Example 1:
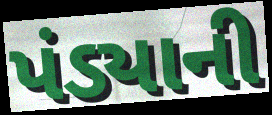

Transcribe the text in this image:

પંડ્યાની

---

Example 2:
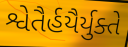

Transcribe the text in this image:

શ્વેતૈર્હયૈર્યુક્તે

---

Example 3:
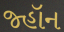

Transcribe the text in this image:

જ્હૉન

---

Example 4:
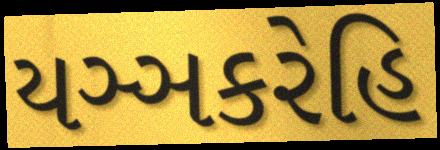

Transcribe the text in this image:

યઞ્ઞકરેહિ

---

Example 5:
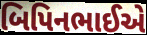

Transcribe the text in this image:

બિપિનભાઈએ